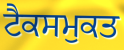
ਟੈਕਸਮੁਕਤ